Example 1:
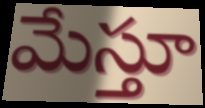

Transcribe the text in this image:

మేస్తూ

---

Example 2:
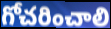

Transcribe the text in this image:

గోచరించాలి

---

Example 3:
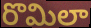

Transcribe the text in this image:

రొమిలా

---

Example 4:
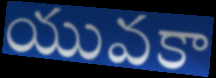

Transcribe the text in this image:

యువకా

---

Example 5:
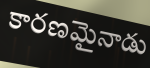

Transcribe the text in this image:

కారణమైనాడు